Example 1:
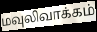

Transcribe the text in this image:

மவுலிவாக்கம்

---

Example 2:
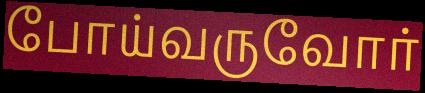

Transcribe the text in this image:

போய்வருவோர்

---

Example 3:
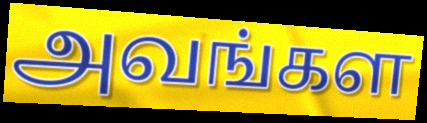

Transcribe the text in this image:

அவங்கள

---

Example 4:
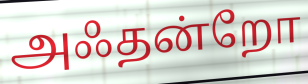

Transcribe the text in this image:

அஃதன்றோ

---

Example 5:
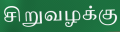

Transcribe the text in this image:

சிறுவழக்கு